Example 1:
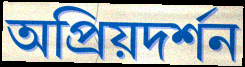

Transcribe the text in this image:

অপ্রিয়দর্শন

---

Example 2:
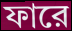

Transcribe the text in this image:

ফারে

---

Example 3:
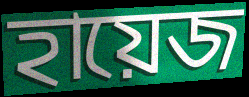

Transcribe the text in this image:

হায়েজ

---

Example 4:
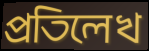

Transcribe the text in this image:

প্রতিলেখ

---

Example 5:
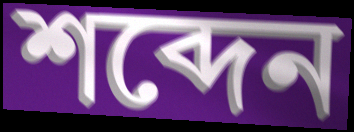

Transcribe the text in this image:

শব্দেন